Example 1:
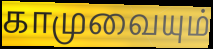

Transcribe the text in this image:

காமுவையும்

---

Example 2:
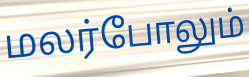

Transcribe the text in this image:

மலர்போலும்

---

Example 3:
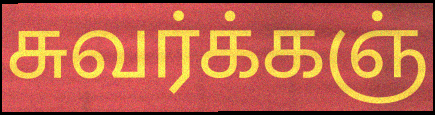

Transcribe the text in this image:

சுவர்க்கஞ்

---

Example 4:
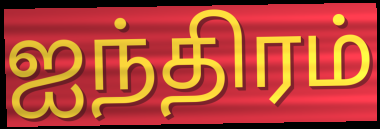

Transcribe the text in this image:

ஐந்திரம்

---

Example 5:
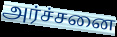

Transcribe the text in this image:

அர்ச்சனை